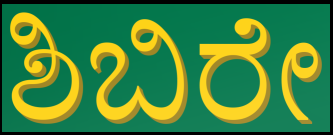
ಶಿಬಿರೇ